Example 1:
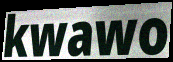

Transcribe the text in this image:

kwawo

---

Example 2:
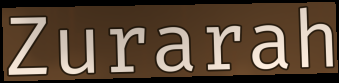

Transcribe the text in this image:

Zurarah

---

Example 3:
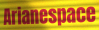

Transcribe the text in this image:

Arianespace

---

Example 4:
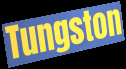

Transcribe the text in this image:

Tungston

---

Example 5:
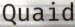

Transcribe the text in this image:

Quaid